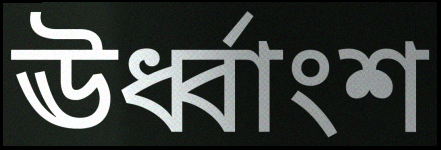
ঊর্ধ্বাংশ